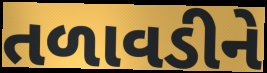
તળાવડીને